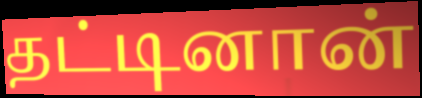
தட்டினான்